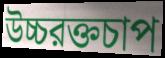
উচ্চরক্তচাপ